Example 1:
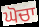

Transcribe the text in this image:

ਘੋਚਾ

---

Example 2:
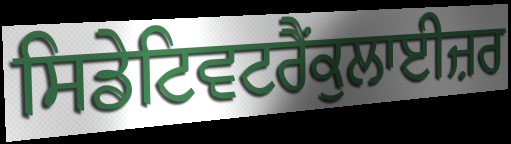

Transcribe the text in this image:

ਸਿਡੇਟਿਵਟਰੈਂਕੁਲਾਈਜ਼ਰ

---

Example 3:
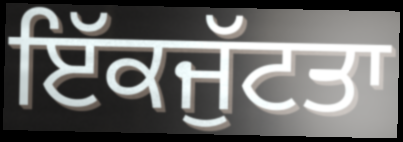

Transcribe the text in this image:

ਇੱਕਜੁੱਟਤਾ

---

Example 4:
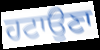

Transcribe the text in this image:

ਹਟਾਉਣਾ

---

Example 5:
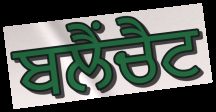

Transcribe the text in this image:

ਬਲੈਂਚੈਟ